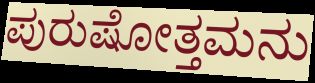
ಪುರುಷೋತ್ತಮನು